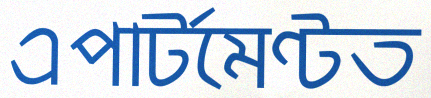
এপাৰ্টমেণ্টত